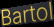
Bartol